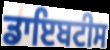
ਡਾਇਬਟੀਸ